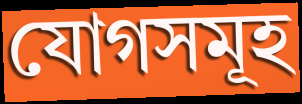
যোগসমূহ